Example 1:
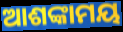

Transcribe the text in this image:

ଆଶଙ୍କାମୟ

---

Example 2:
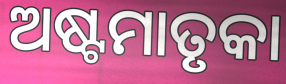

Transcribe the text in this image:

ଅଷ୍ଟମାତୃକା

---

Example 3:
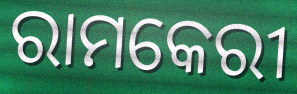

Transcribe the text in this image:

ରାମକେରୀ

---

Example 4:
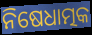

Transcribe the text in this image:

ନିଷେଧାତ୍ମକ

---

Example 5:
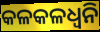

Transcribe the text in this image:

କଳକଳଧ୍ଵନି